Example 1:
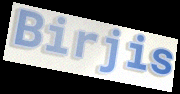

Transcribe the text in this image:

Birjis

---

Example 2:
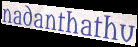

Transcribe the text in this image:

nadanthathu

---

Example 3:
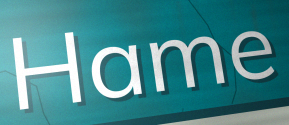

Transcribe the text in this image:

Hame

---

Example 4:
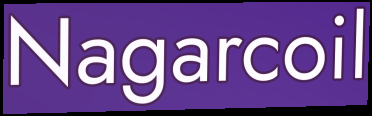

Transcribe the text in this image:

Nagarcoil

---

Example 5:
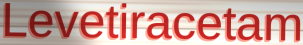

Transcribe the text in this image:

Levetiracetam